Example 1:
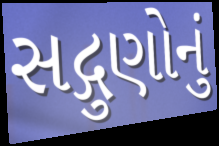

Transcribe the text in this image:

સદ્ગુણોનું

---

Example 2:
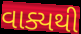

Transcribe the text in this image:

વાક્યથી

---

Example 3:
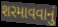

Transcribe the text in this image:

શરમાવવાનું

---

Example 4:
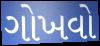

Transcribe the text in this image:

ગોખવો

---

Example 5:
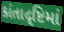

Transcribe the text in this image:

કાંતાદૃષ્ટિમાં